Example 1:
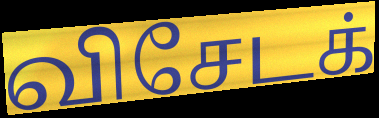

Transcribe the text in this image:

விசேடக்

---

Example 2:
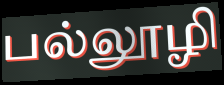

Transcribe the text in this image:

பல்லூழி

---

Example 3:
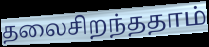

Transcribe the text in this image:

தலைசிறந்ததாம்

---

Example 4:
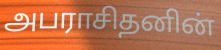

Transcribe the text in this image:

அபராசிதனின்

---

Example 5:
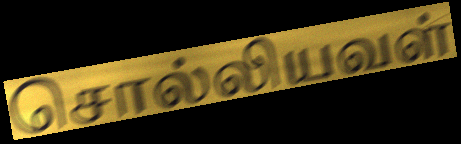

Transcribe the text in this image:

சொல்லியவள்